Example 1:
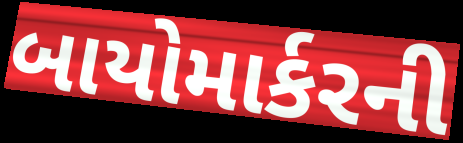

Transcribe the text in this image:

બાયોમાર્કરની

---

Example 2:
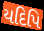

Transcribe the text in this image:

યદિપિ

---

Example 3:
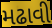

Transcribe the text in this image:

મઢાવી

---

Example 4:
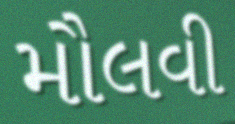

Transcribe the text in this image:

મૌલવી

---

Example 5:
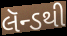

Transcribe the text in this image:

લૅન્ડથી